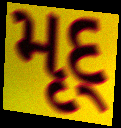
મૃદ્